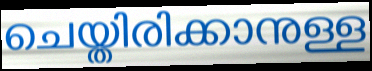
ചെയ്തിരിക്കാനുള്ള